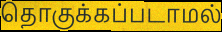
தொகுக்கப்படாமல்